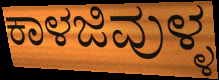
ಕಾಳಜಿವುಳ್ಳ